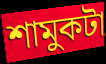
শামুকটা